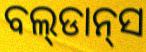
ବଲ୍‌ଡାନ୍‌ସ